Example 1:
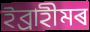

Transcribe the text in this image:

ইব্ৰাহীমৰ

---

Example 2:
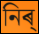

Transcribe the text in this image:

নিৰ্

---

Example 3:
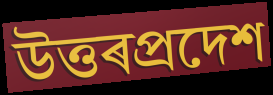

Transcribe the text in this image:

উত্তৰপ্ৰদেশ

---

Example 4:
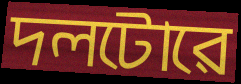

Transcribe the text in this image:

দলটোৱে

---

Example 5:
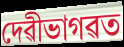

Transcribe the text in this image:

দেৱীভাগৱত